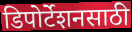
डिपोर्टेशनसाठी